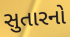
સુતારનો